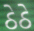
ઠેઠે